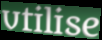
utilise